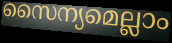
സൈന്യമെല്ലാം